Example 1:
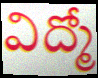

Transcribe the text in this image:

విద్మో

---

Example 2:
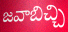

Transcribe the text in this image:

జవాబిచ్చి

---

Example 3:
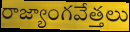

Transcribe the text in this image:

రాజ్యాంగవేత్తలు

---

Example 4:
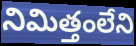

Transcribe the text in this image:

నిమిత్తంలేని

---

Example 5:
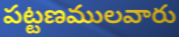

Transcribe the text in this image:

పట్టణములవారు